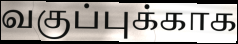
வகுப்புக்காக